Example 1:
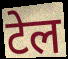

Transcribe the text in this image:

टेल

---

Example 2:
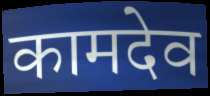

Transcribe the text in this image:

कामदेव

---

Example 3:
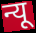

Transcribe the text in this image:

न्यू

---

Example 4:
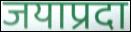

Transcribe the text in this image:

जयाप्रदा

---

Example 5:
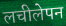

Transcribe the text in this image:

लचीलेपन